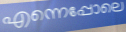
എന്നെപ്പോലെ